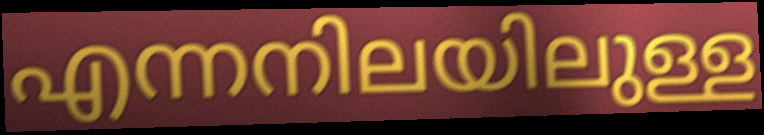
എന്നനിലയിലുള്ള